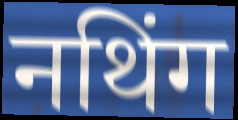
नथिंग